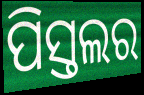
ପିସ୍ତଲର